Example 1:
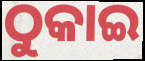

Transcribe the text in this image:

ଠୁକାଇ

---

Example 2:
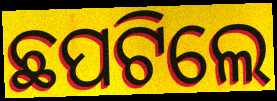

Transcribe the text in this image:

ଛପଟିଲେ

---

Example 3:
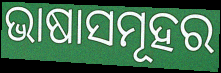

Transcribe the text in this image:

ଭାଷାସମୂହର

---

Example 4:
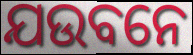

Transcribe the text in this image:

ଯଉବନେ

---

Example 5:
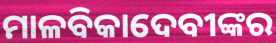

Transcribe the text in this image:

ମାଳବିକାଦେବୀଙ୍କର